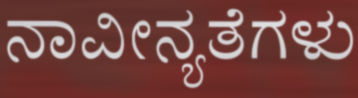
ನಾವೀನ್ಯತೆಗಳು